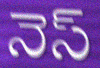
నెస్